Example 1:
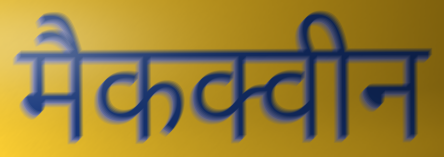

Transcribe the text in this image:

मैकक्वीन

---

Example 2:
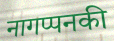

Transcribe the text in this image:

नागप्पनकी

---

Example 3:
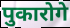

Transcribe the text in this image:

पुकारोगे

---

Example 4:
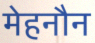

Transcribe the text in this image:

मेहनौन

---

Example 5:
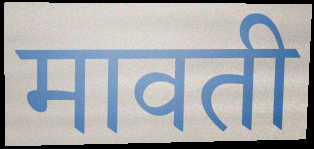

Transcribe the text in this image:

मावती